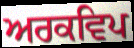
ਅਰਕਵਿਪ